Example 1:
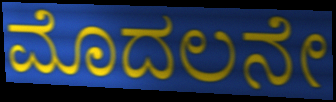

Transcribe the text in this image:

ಮೊದಲನೇ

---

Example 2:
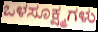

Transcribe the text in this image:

ಒಳಸೂಕ್ಷ್ಮಗಳು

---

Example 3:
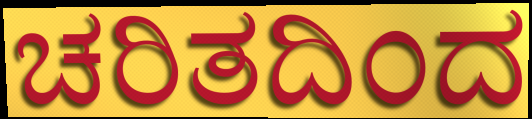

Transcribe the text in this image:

ಚರಿತದಿಂದ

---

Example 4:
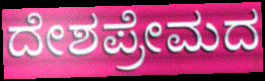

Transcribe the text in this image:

ದೇಶಪ್ರೇಮದ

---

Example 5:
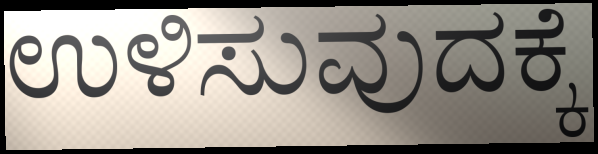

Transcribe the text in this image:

ಉಳಿಸುವುದಕ್ಕೆ